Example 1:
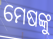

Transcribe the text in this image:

ମେଷଙ୍କୁ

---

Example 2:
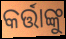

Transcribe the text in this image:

କର୍ତ୍ତାଙ୍କୁ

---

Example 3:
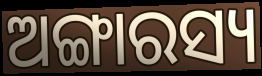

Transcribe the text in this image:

ଅଙ୍ଗାରସ୍ୟ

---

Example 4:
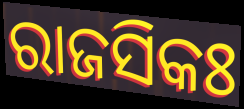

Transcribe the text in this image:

ରାଜସିକଃ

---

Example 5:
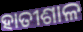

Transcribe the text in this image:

ହାତୀଶାଳ